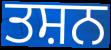
ਤਸ਼ਨ